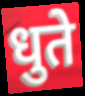
धुते